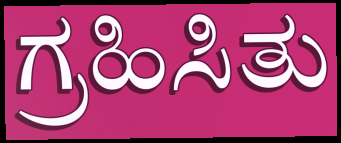
ಗ್ರಹಿಸಿತು